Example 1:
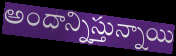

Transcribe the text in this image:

అందాన్నిస్తున్నాయి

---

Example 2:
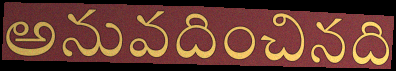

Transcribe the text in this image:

అనువదించినది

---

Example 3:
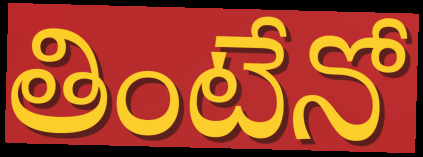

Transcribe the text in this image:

తింటేనో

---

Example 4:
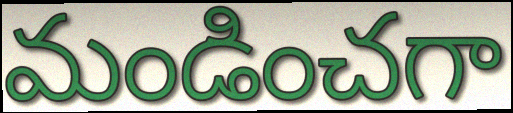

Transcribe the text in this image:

మండించగా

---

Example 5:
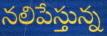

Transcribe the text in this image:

నలిపేస్తున్న